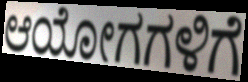
ಆಯೋಗಗಳಿಗೆ